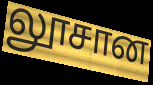
லூசான